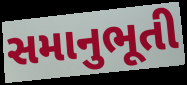
સમાનુભૂતી